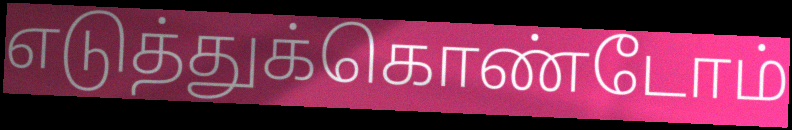
எடுத்துக்கொண்டோம்